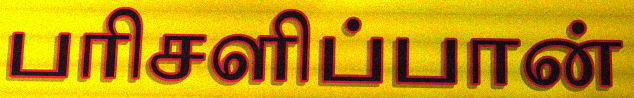
பரிசளிப்பான்